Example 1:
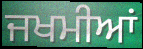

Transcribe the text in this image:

ਜਖਮੀਆਂ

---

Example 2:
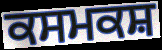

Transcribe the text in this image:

ਕਸਮਕਸ਼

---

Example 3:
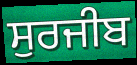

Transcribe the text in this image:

ਸੁਰਜੀਬ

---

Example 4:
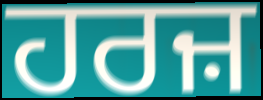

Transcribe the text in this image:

ਹਰਜ਼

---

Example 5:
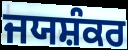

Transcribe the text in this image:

ਜਯਸ਼ੰਕਰ